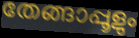
തേങ്ങാപ്പൂളും